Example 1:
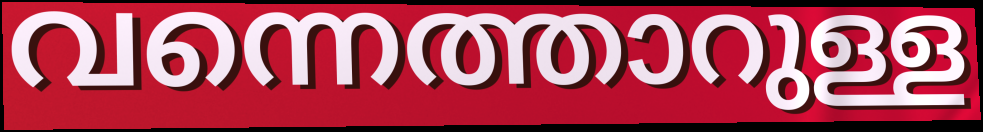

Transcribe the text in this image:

വന്നെത്താറുള്ള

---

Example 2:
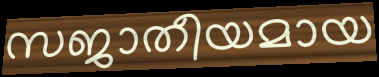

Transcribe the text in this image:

സജാതീയമായ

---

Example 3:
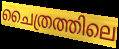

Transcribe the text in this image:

ചൈത്രത്തിലെ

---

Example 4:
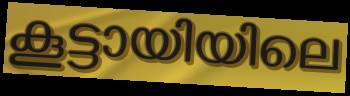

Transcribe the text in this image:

കൂട്ടായിയിലെ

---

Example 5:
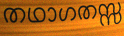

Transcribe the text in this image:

തഥാഗതസ്സ